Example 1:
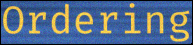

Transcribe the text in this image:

Ordering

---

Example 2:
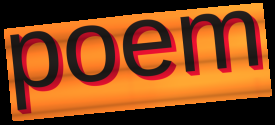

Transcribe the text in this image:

poem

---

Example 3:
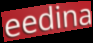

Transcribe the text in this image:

eedina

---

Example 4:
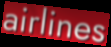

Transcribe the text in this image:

airlines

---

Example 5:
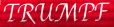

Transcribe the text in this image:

TRUMPF